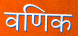
वणिक